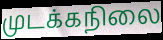
முடக்கநிலை